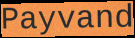
Payvand